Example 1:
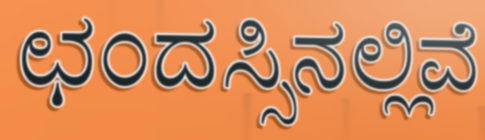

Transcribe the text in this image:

ಛಂದಸ್ಸಿನಲ್ಲಿವೆ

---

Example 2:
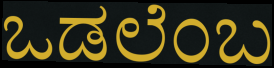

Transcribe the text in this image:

ಒಡಲೆಂಬ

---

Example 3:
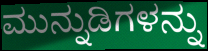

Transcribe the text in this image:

ಮುನ್ನುಡಿಗಳನ್ನು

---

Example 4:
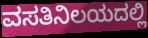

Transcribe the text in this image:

ವಸತಿನಿಲಯದಲ್ಲಿ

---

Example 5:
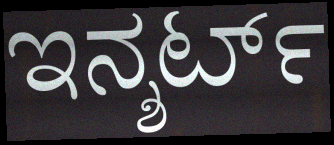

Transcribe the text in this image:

ಇನ್ಶರ್ಟ್